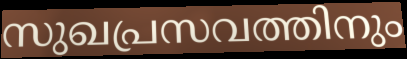
സുഖപ്രസവത്തിനും